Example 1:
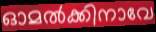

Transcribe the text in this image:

ഓമൽക്കിനാവേ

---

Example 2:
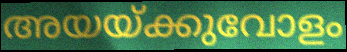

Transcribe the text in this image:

അയയ്ക്കുവോളം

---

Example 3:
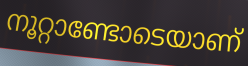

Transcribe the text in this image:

നൂറ്റാണ്ടോടെയാണ്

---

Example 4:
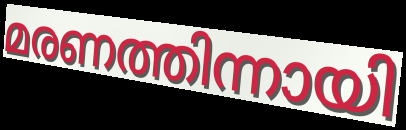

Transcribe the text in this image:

മരണത്തിന്നായി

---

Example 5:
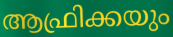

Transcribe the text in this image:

ആഫ്രിക്കയും